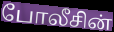
போலீசின்